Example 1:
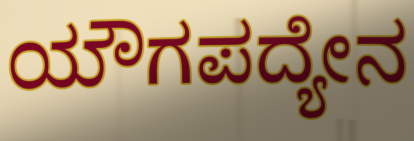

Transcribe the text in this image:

ಯೌಗಪದ್ಯೇನ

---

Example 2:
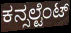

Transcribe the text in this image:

ಕನ್ಸಲ್ಟೆಂಟ್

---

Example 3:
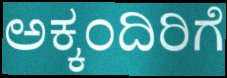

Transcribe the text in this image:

ಅಕ್ಕಂದಿರಿಗೆ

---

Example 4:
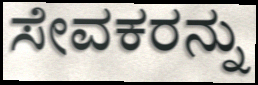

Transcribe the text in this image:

ಸೇವಕರನ್ನು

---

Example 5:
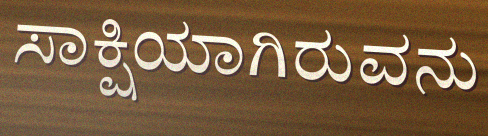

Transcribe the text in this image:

ಸಾಕ್ಷಿಯಾಗಿರುವನು